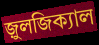
জ়ুলজিক্যাল